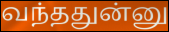
வந்ததுன்னு